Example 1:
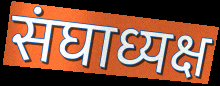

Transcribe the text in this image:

संघाध्यक्ष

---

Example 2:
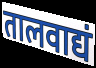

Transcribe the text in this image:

तालवाद्यं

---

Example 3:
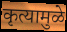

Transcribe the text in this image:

कृत्यामुळे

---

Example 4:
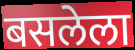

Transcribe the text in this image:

बसलेला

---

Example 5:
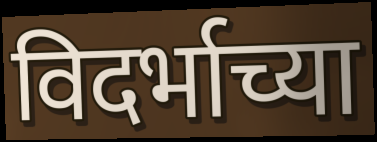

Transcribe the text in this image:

विदर्भाच्या